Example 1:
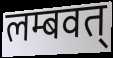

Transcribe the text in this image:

लम्बवत्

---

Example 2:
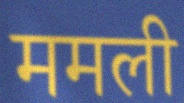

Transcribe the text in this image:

ममली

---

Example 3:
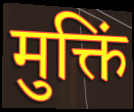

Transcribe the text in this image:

मुक्तिं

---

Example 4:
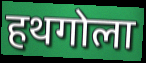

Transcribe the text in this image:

हथगोला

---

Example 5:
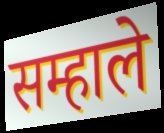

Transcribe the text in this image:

सम्हाले